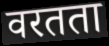
वरतता